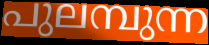
പുലമ്പുന്ന